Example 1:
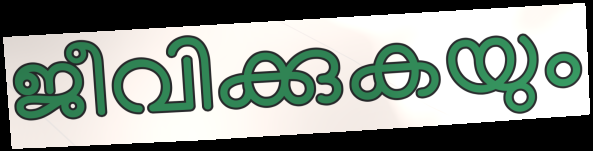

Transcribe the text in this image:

ജീവിക്കുകയും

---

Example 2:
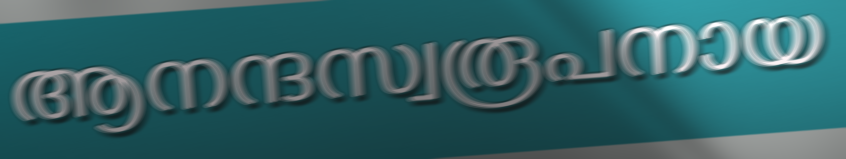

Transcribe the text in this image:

ആനന്ദസ്വരൂപനായ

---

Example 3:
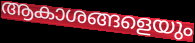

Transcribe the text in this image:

ആകാശങ്ങളെയും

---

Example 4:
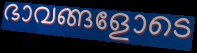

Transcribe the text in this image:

ഭാവങ്ങളോടെ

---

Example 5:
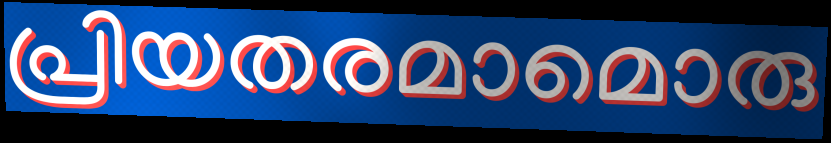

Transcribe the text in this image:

പ്രിയതരമാമൊരു